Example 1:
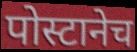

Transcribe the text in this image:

पोस्टानेच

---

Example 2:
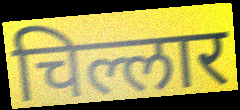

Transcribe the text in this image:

चिल्लार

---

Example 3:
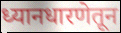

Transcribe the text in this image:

ध्यानधारणेतून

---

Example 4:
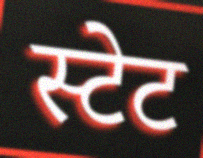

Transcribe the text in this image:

स्टेट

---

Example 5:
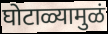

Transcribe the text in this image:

घोटाळ्यामुळं